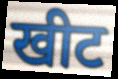
खीट